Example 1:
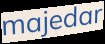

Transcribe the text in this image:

majedar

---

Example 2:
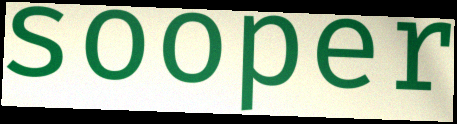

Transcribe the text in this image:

sooper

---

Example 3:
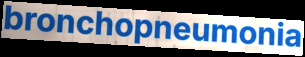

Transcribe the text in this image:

bronchopneumonia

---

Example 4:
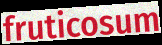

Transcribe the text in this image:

fruticosum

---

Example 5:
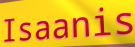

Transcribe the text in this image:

Isaanis